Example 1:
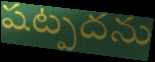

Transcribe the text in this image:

షట్పదను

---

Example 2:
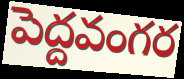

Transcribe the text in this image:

పెద్దవంగర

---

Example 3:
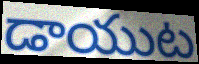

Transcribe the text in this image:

డాయుట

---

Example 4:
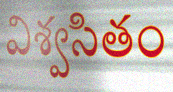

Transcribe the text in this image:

విశ్వసితం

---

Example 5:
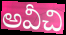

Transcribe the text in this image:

అవీచి